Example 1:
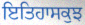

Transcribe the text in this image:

ਇਤਿਹਾਸਕੁਝ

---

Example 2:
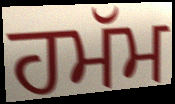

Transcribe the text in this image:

ਹਮੱਮ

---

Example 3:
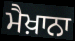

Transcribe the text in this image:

ਮੈਖ਼ਾਨਾ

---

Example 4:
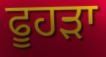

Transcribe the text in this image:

ਫੂਹੜਾ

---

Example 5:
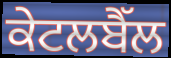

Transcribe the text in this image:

ਕੇਟਲਬੈੱਲ